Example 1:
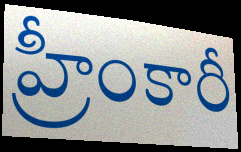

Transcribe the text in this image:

హ్రీంకారీ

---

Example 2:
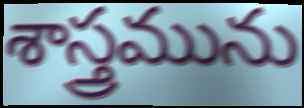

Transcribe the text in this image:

శాస్త్రమును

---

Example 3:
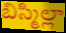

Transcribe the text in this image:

బిస్మిల్లా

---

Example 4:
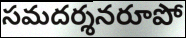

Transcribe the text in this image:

సమదర్శనరూపో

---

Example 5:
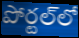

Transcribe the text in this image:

పోర్టల్‌లో